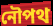
নৌপথ